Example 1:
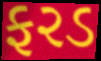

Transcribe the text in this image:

ફરડ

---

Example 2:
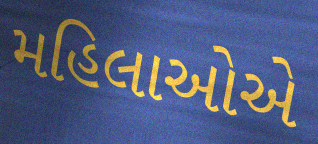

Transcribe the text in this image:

મહિલાઓએ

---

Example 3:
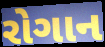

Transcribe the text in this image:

રોગાન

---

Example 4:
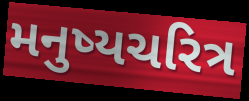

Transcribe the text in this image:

મનુષ્યચરિત્ર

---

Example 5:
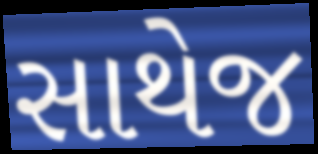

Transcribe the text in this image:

સાથેજ